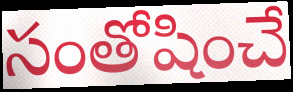
సంతోషించే